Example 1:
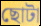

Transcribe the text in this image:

ছোটা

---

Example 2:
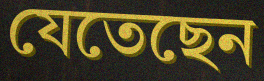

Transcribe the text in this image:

যেতেছেন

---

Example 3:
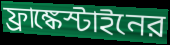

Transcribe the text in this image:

ফ্রাঙ্কেস্টাইনের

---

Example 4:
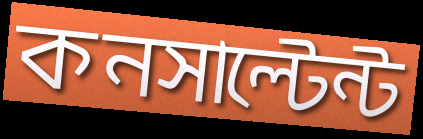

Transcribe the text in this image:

কনসাল্টেন্ট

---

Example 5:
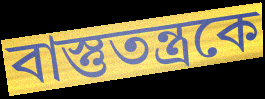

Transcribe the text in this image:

বাস্তুতন্ত্রকে